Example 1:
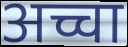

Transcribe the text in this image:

अच्चा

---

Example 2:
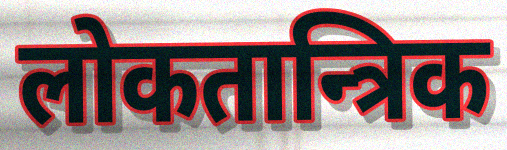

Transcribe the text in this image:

लोकतान्त्रिक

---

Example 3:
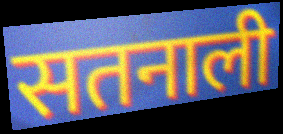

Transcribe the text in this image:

सतनाली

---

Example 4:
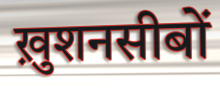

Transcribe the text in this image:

ख़ुशनसीबों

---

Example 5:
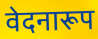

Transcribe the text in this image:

वेदनारूप